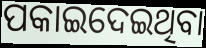
ପକାଇଦେଇଥିବା